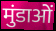
मुंडाओं